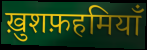
ख़ुशफ़हमियाँ